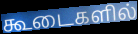
கூடைகளில்